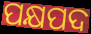
ପକ୍ଷପଦ